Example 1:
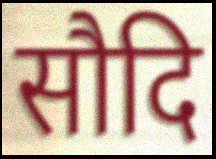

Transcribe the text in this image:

सौदि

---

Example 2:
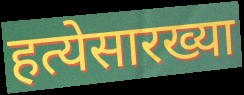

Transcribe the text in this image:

हत्येसारख्या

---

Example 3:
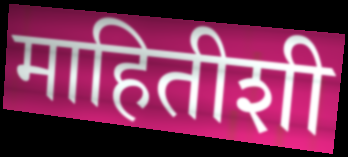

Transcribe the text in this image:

माहितीशी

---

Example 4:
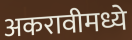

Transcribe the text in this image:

अकरावीमध्ये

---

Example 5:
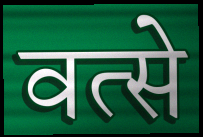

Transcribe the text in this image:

वत्से